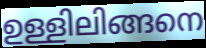
ഉള്ളിലിങ്ങനെ